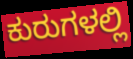
ಕುರುಗಳಲ್ಲಿ